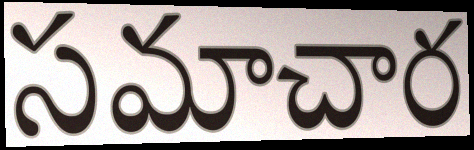
సమాచార